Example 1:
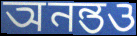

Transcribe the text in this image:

অনন্তও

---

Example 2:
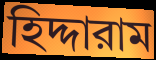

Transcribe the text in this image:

হিদ্দারাম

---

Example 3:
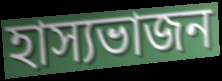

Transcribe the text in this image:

হাস্যভাজন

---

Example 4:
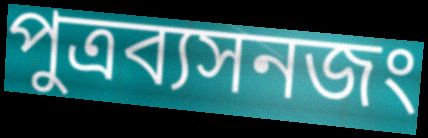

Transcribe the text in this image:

পুত্রব্যসনজং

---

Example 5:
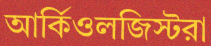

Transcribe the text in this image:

আর্কিওলজিস্টরা